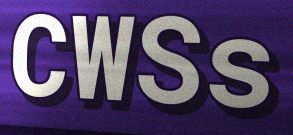
CWSs